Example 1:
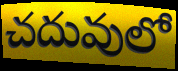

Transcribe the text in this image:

చదువులో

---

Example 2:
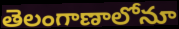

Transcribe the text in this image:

తెలంగాణాలోనూ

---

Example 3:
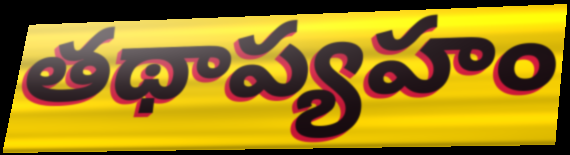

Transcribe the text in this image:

తథాప్యహం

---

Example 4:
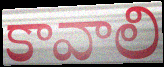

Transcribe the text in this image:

కావాలి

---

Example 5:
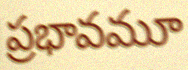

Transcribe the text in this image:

ప్రభావమూ